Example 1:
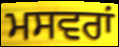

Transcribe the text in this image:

ਮਸਵਰਾਂ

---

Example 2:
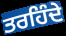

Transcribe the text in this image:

ਤਰਹਿੰਦੇ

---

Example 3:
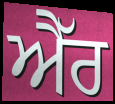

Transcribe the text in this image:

ਐੱਰ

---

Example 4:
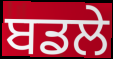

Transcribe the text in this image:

ਬਡਲੇ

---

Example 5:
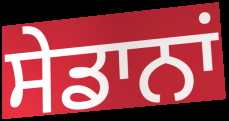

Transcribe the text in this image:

ਸੇਡਾਨਾਂ